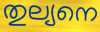
തുല്യനെ